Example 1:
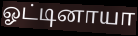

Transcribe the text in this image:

ஓட்டினாயா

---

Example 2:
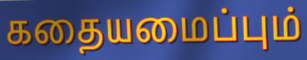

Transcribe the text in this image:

கதையமைப்பும்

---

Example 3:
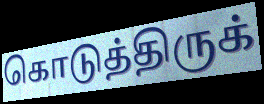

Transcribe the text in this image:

கொடுத்திருக்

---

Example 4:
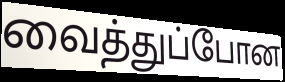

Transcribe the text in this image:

வைத்துப்போன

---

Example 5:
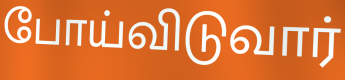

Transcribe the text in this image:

போய்விடுவார்